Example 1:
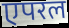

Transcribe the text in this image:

एपरल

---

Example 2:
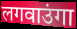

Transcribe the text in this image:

लगवाउंगा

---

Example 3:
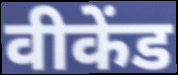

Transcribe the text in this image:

वीकेंड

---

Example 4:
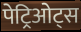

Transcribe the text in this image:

पेट्रिओट्स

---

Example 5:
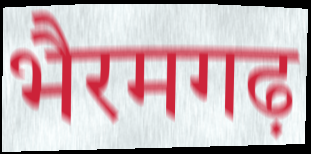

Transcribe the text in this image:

भैरमगढ़